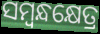
ସମ୍ବନ୍ଧକ୍ଷେତ୍ର